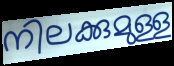
നിലക്കുമുള്ള